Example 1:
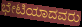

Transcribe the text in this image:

ಭೇಟಿಯಾದವರು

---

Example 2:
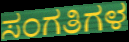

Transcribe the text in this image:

ಸಂಗತಿಗಳ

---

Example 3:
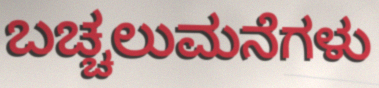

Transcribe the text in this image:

ಬಚ್ಚಲುಮನೆಗಳು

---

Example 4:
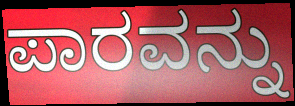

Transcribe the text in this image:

ಪಾರವನ್ನು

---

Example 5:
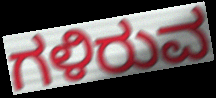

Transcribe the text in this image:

ಗಳಿರುವ